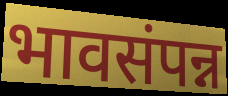
भावसंपन्न